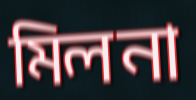
মিলনা